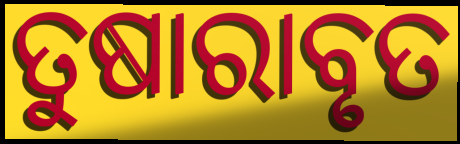
ତୁଷାରାବୃତ